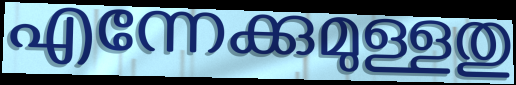
എന്നേക്കുമുള്ളതു